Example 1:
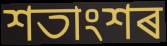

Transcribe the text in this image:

শতাংশৰ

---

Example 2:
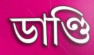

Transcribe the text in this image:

ডাণ্ডি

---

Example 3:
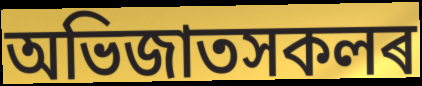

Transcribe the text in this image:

অভিজাতসকলৰ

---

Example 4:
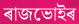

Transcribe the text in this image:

ৰাজভোইৰ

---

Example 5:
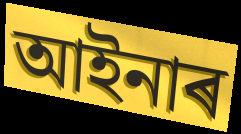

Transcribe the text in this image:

আইনাৰ